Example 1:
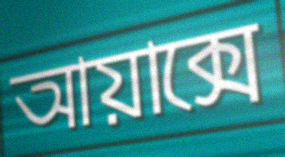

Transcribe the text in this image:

আয়াক্সে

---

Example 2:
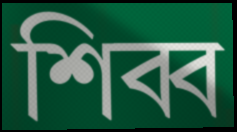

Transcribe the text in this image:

শিব্ব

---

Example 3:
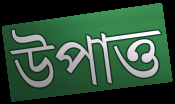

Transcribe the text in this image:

উপাত্ত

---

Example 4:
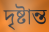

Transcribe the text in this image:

দৃষ্টান্ত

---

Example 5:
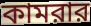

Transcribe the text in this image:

কামরার